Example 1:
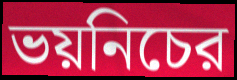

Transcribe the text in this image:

ভয়নিচের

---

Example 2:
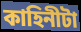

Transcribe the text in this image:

কাহিনীটা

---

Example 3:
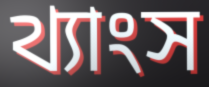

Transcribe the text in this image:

থ্যাংস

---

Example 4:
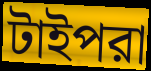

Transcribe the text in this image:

টাইপরা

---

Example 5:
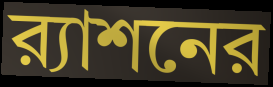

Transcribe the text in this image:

র‍্যাশনের